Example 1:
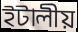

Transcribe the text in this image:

ইটালীয়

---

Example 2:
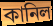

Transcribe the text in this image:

কানিল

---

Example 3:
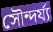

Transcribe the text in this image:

সৌন্দৰ্য্য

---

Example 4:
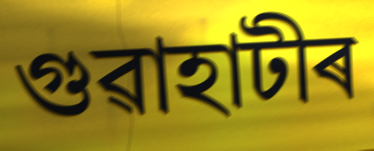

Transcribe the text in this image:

গুৱাহাটীৰ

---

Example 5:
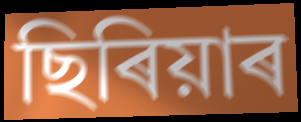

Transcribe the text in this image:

ছিৰিয়াৰ